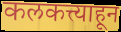
कलकत्त्याहून